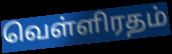
வெள்ளிரதம்